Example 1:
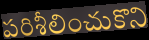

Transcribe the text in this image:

పరిశీలించుకొని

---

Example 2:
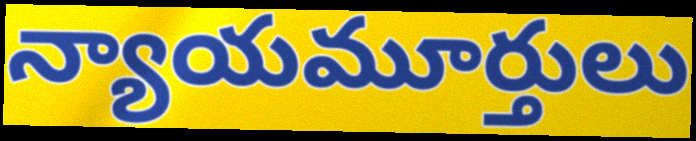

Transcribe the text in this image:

న్యాయమూర్తులు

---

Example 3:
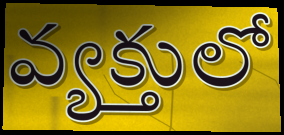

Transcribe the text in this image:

వ్యక్తులో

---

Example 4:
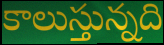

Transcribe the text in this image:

కాలుస్తున్నది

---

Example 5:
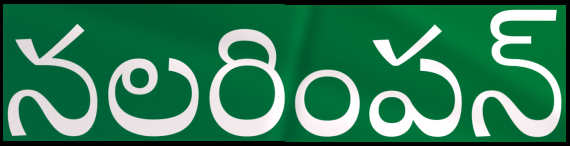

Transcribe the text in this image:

నలరింపన్